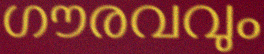
ഗൗരവവും